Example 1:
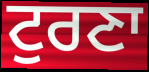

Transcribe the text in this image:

ਟੁਰਣਾ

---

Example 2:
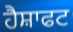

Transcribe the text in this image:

ਹੈਸ਼ਾਫਟ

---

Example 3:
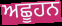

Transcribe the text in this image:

ਅਛੂਹਨ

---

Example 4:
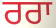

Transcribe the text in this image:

ਰਰਾ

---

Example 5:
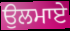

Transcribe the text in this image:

ਉਲਮਾਏ